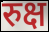
रुक्ष